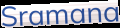
Sramana